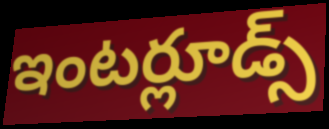
ఇంటర్లూడ్స్